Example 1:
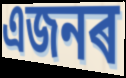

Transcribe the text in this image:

এজনৰ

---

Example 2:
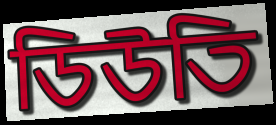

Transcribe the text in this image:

ডিউতি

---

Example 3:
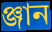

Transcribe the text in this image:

ঞ্জান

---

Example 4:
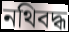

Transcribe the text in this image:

নথিবদ্ধ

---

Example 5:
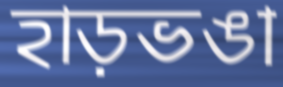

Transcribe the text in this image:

হাড়ভঙা